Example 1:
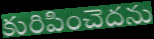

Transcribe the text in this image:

కురిపించెదను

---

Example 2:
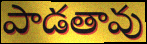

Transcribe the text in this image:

పాడతావు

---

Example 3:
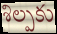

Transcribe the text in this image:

శిల్పకు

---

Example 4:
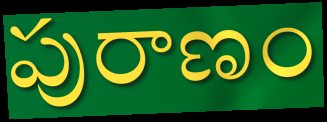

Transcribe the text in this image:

పురాణం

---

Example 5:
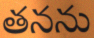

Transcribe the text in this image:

తనను